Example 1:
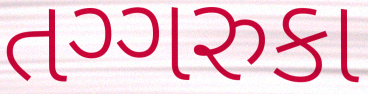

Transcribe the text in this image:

તગ્ગરુકા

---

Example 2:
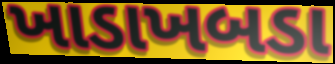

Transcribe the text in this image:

ખાડાખબડા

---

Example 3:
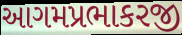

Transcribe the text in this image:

આગમપ્રભાકરજી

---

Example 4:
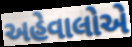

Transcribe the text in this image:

અહેવાલોએ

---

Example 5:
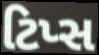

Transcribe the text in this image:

ટિપ્સ